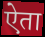
ऐता